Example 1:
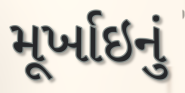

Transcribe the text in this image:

મૂર્ખાઇનું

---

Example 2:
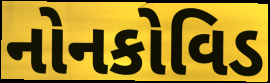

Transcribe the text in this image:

નોનકોવિડ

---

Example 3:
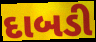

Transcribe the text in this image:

દાબડી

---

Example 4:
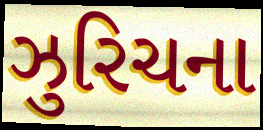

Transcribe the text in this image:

ઝુરિચના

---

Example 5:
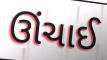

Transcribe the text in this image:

ઊંચાઈ